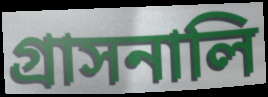
গ্রাসনালি